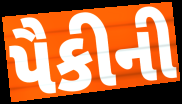
પૈકીની